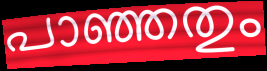
പാഞ്ഞതും